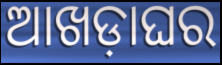
ଆଖଡ଼ାଘର